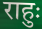
राहुः